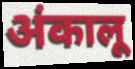
अंकालू